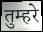
तुम्हरे